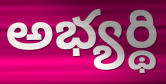
అభ్యర్థి